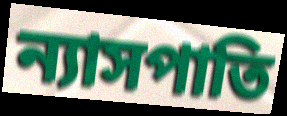
ন্যাসপাতি